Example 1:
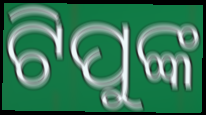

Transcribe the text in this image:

ଟିପୁଙ୍କ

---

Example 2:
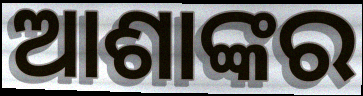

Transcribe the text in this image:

ଆଶାଙ୍କର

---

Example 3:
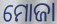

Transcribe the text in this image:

ମୋଜା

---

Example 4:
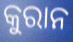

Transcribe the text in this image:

କୁରାନ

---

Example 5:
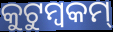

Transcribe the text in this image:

କୁଟୁମ୍ବକମ୍